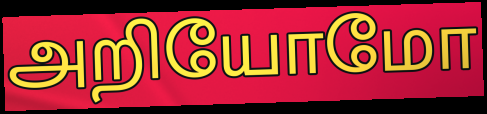
அறியோமோ